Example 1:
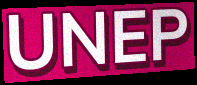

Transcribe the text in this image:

UNEP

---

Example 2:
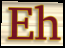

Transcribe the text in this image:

Eh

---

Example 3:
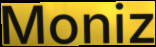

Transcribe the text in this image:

Moniz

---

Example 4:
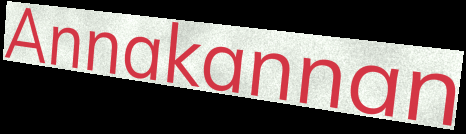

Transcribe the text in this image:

Annakannan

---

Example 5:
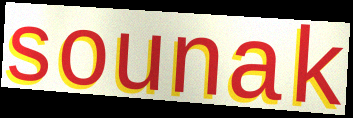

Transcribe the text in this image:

sounak